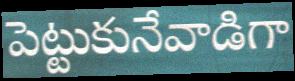
పెట్టుకునేవాడిగా